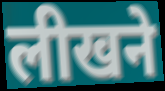
लीखने